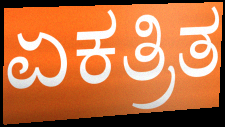
ಏಕತ್ರಿತ